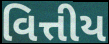
વિત્તીય